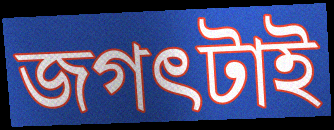
জগৎটাই